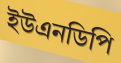
ইউএনডিপি